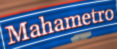
Mahametro